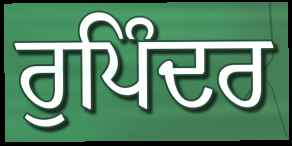
ਰੁਪਿੰਦਰ